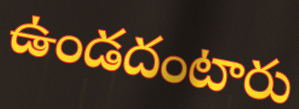
ఉండదంటారు